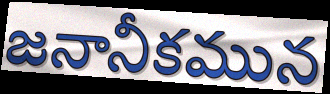
జనానీకమున